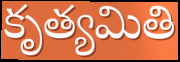
కృత్యమితి